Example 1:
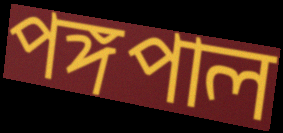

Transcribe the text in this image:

পঙ্গপাল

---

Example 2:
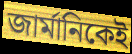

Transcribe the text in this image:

জার্মানিকেই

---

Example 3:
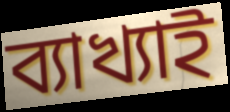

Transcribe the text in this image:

ব্যাখ্যাই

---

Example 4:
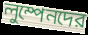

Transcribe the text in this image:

লুম্পেনদের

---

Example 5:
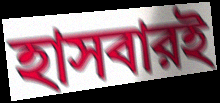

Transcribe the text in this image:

হাসবারই